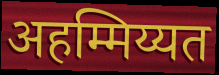
अहम्मिय्यत